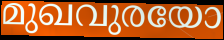
മുഖവുരയോ